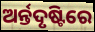
ଅର୍ନ୍ତଦୃଷ୍ଟିରେ